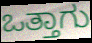
ಒತ್ತಾಗು